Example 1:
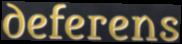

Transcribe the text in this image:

deferens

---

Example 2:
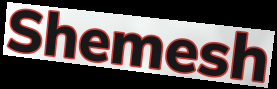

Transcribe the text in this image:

Shemesh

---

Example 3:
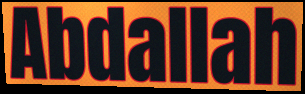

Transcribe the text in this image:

Abdallah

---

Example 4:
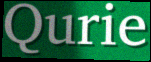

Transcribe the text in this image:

Qurie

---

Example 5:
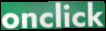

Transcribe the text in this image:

onclick